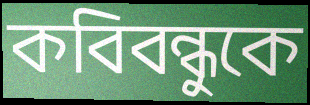
কবিবন্ধুকে